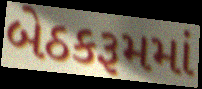
બેઠકરૂમમાં